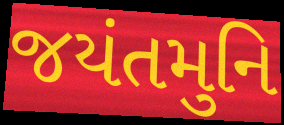
જયંતમુનિ